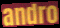
andro